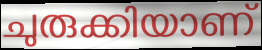
ചുരുക്കിയാണ്